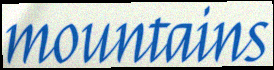
mountains